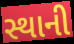
સ્થાની